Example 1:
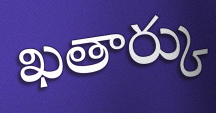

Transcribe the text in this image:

ఖతార్కు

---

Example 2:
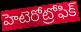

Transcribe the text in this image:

హెటెరోట్రోఫిక్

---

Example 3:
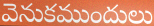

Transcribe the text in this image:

వెనుకముందులు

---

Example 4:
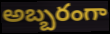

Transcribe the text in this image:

అబ్బరంగా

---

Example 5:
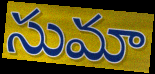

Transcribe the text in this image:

సుమా